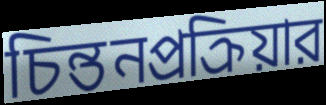
চিন্তনপ্রক্রিয়ার